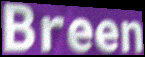
Breen